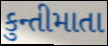
કુન્તીમાતા